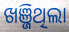
ଖଞ୍ଜିଥିଲା